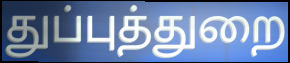
துப்புத்துறை